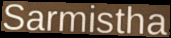
Sarmistha